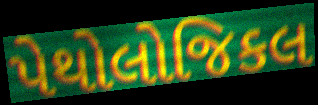
પેથોલોજિકલ